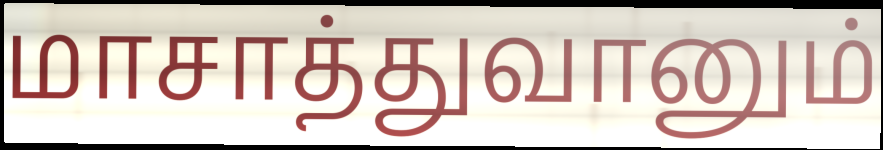
மாசாத்துவானும்